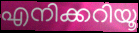
എനിക്കറിയൂ